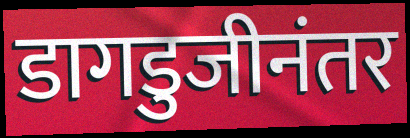
डागडुजीनंतर